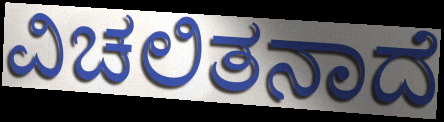
ವಿಚಲಿತನಾದೆ